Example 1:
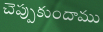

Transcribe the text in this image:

చెప్పుకుందాము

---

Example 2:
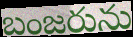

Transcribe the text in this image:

బంజరును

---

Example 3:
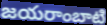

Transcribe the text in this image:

జయరాంబాటి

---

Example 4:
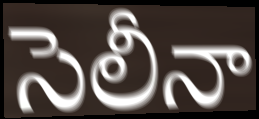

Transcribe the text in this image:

సెలీనా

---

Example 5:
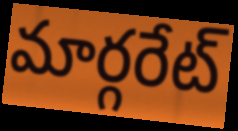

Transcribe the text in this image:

మార్గరేట్